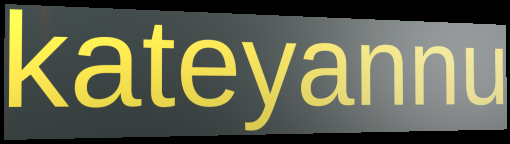
kateyannu